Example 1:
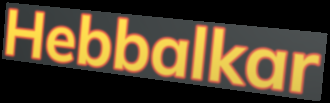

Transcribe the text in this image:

Hebbalkar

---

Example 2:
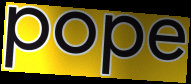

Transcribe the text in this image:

pope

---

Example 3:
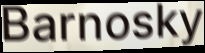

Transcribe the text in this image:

Barnosky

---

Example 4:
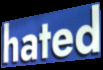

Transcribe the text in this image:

hated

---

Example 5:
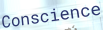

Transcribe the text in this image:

Conscience